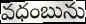
వధంబును